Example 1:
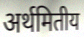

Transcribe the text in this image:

अर्थमितीय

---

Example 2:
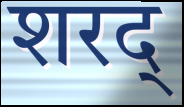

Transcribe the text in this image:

शरद्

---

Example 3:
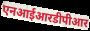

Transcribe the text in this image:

एनआईआरडीपीआर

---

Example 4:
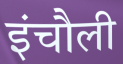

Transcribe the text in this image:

इंचौली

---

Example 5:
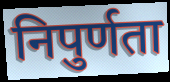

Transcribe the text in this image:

निपुर्णता